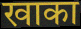
खाका